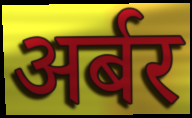
अर्बर